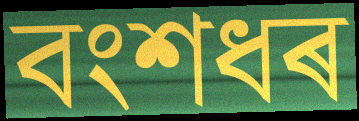
বংশধৰ